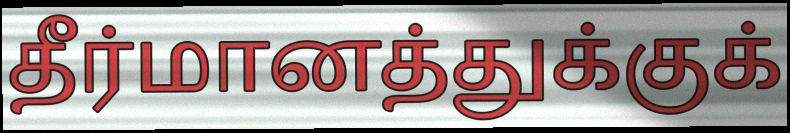
தீர்மானத்துக்குக்